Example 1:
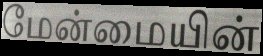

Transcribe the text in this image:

மேன்மையின்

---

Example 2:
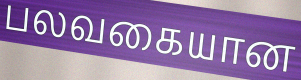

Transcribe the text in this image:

பலவகையான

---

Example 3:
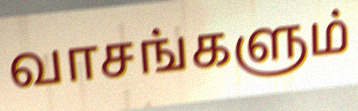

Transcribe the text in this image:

வாசங்களும்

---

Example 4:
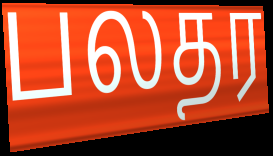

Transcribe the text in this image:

பலதர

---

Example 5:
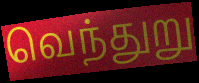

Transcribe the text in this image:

வெந்துறு